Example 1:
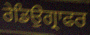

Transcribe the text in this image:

ਰੇਡਿਉਗ੍ਰਾਫਰ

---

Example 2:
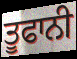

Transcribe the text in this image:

ਤੂਫਾਨੀ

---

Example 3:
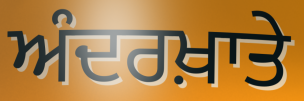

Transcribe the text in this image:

ਅੰਦਰਖ਼ਾਤੇ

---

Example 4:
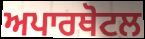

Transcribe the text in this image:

ਅਪਾਰਥੋਟਲ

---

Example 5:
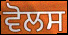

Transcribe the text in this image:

ਵੋਲਸ